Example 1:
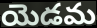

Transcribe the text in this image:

యెడమ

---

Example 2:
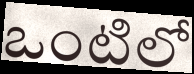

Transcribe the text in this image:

ఒంటిలో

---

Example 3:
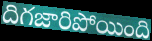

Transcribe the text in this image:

దిగజారిపోయింది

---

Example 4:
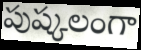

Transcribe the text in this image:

పుష్కలంగా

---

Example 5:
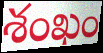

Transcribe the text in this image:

శంఖం